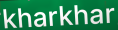
kharkhar